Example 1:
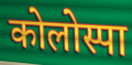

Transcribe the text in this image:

कोलोस्पा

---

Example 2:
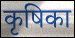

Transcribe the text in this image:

कृषिका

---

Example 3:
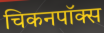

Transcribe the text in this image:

चिकनपॉक्स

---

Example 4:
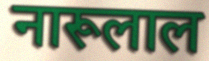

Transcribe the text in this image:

नारूलाल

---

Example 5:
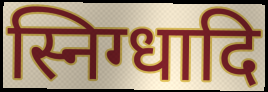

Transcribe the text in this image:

स्निग्धादि